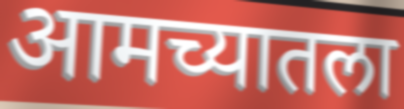
आमच्यातला